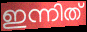
ഇന്നിത്